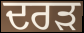
ਦਰੜ